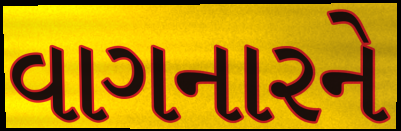
વાગનારને